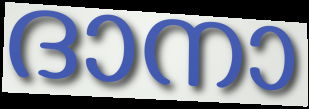
ദാനാ